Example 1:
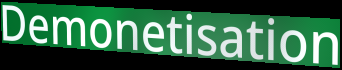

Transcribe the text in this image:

Demonetisation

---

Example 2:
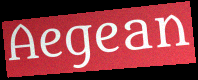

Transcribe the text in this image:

Aegean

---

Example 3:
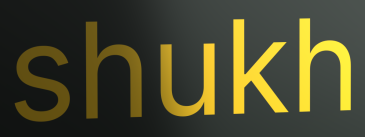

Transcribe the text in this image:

shukh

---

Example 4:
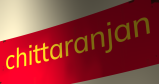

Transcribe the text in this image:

chittaranjan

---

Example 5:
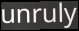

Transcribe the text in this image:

unruly